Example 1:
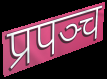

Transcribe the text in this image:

प्रपञ्च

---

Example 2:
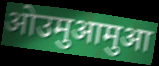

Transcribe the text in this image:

ओउमुआमुआ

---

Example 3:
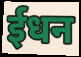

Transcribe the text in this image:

ईधन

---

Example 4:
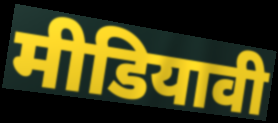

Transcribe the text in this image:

मीडियावी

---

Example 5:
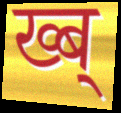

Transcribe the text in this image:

ख्ब्